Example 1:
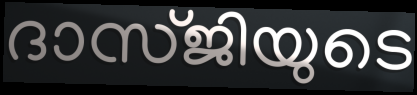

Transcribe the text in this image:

ദാസ്ജിയുടെ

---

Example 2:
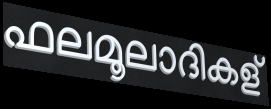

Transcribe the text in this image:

ഫലമൂലാദികള്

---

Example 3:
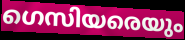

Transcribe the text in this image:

ഗെസിയരെയും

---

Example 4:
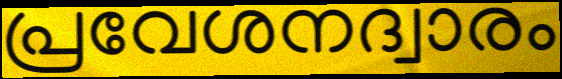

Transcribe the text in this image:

പ്രവേശനദ്വാരം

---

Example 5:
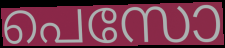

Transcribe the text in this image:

പെസോ